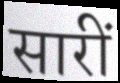
सारीं